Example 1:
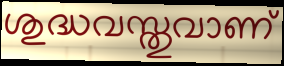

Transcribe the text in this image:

ശുദ്ധവസ്തുവാണ്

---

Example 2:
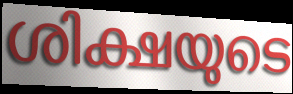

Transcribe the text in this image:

ശിക്ഷയുടെ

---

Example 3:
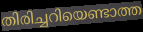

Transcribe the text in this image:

തിരിച്ചറിയെണ്ടാത്ത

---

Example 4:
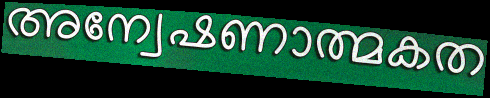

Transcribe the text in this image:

അന്വേഷണാത്മകത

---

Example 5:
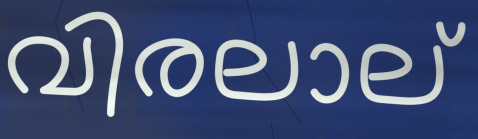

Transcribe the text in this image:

വിരലാല്